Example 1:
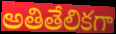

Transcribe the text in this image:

అతితేలికగా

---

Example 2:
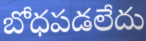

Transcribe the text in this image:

బోధపడలేదు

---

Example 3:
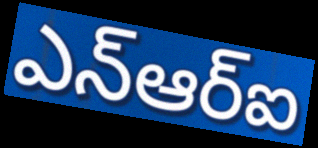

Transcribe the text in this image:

ఎన్ఆర్ఐ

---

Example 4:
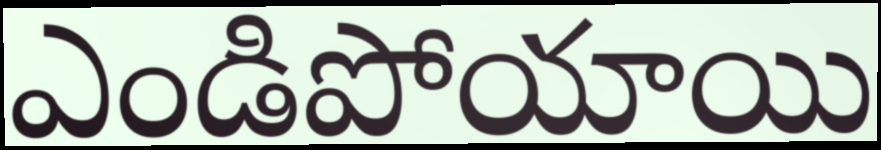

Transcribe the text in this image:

ఎండిపోయాయి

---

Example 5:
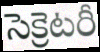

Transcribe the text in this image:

సెక్రెటరీ